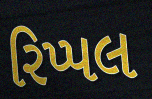
રિપ્પલ